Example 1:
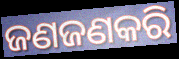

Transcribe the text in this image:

ଜଣଜଣକରି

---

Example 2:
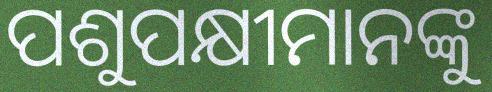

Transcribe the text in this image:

ପଶୁପକ୍ଷୀମାନଙ୍କୁ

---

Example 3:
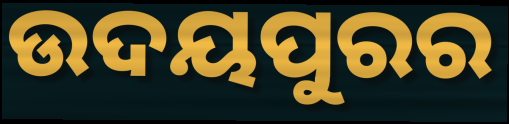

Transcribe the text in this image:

ଉଦୟପୁରର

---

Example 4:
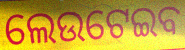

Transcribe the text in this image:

ଲେଉଟେଇବ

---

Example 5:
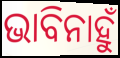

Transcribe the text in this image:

ଭାବିନାହୁଁ